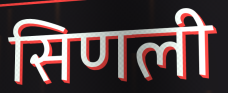
सिणली